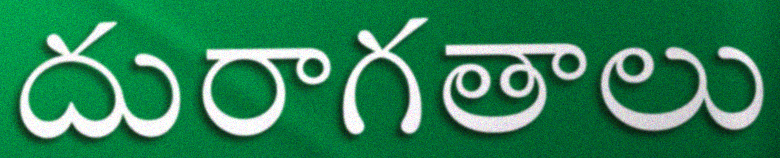
దురాగతాలు